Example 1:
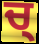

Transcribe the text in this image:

ਚ੍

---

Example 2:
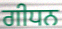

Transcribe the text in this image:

ਗੀਧਨ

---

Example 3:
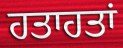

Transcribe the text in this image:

ਹਤਾਹਤਾਂ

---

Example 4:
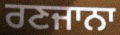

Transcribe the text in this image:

ਰਣਜਾਨਾ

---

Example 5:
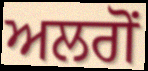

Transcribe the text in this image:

ਅਲਗੋਂ